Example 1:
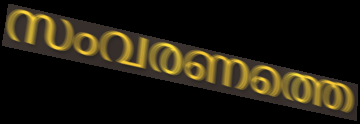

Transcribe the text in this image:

സംവരണത്തെ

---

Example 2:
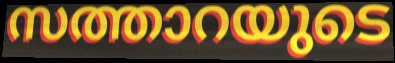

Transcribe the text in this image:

സത്താറയുടെ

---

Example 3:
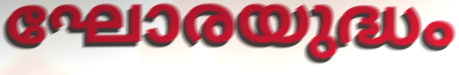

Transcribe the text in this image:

ഘോരയുദ്ധം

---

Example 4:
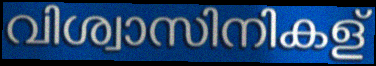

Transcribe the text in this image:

വിശ്വാസിനികള്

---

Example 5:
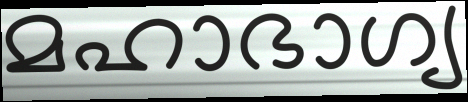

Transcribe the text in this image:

മഹാഭാഗ്യ